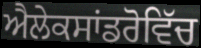
ਐਲੇਕਸਾਂਡਰੋਵਿੱਚ